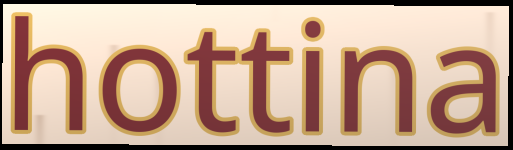
hottina